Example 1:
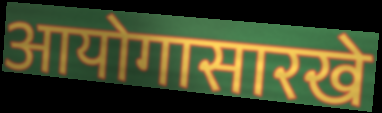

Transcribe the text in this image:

आयोगासारखे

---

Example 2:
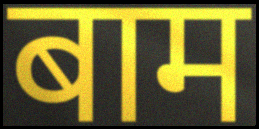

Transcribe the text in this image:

बाम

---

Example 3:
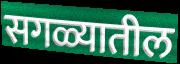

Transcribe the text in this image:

सगळ्यातील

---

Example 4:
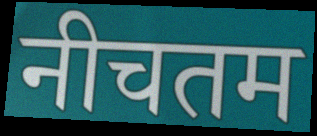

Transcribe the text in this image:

नीचतम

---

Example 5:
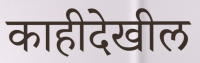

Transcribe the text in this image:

काहीदेखील